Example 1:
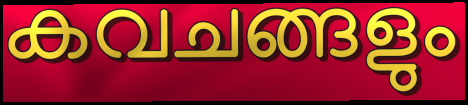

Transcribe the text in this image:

കവചങ്ങളും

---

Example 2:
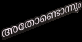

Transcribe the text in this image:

അതോണ്ടൊന്നും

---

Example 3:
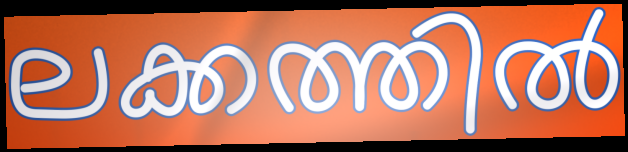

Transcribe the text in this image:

ലക്കത്തിൽ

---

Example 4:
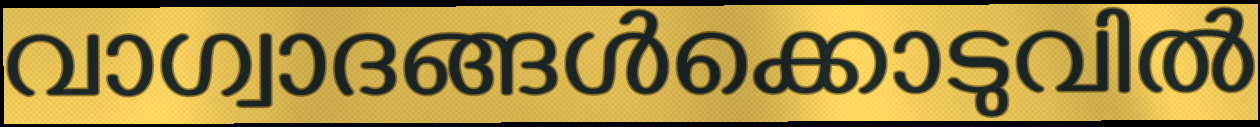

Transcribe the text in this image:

വാഗ്വാദങ്ങൾക്കൊടുവിൽ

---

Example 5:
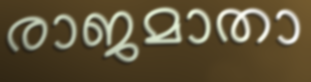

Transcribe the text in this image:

രാജമാതാ